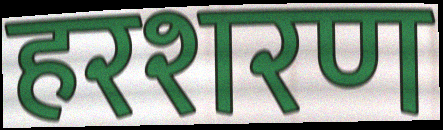
हरशरण